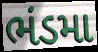
ભંડમા